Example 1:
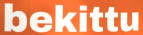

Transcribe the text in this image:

bekittu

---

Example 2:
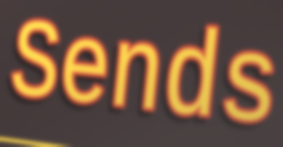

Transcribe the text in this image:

Sends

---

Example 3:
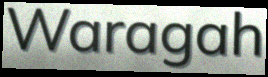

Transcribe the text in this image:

Waragah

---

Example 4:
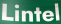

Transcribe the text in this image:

Lintel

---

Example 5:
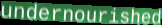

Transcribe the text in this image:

undernourished